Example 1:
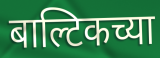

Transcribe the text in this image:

बाल्टिकच्या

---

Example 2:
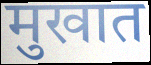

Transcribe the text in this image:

मुखात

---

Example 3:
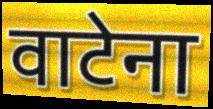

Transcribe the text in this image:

वाटेना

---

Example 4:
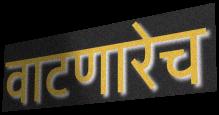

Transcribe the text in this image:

वाटणारेच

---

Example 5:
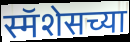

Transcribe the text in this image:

स्मॅशेसच्या